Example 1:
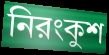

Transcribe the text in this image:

নিরংকুশ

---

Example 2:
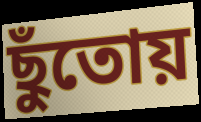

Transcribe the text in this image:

ছুঁতোয়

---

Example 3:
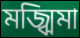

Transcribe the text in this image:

মজ্ঝিমা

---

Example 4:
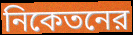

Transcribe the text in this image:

নিকেতনের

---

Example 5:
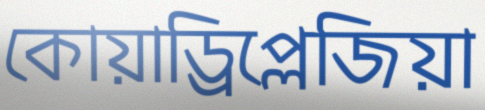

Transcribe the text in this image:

কোয়াড্রিপ্লেজিয়া